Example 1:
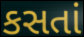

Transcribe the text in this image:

કસતાં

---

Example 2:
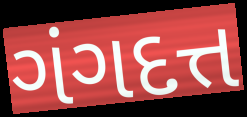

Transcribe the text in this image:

ગંગદત્ત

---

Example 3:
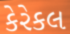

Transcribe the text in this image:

કેરેકલ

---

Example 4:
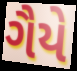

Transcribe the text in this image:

ગૈયે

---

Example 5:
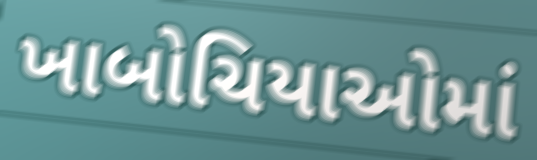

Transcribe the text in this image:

ખાબોચિયાઓમાં